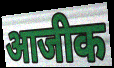
आजीक